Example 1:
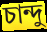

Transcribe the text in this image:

চান্দু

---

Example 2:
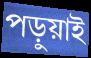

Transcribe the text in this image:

পড়ুয়াই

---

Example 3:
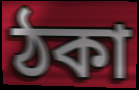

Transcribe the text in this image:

ঠকা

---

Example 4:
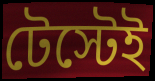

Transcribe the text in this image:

টেস্টেই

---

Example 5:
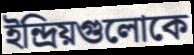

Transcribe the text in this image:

ইন্দ্রিয়গুলোকে